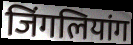
जिंगलियांग